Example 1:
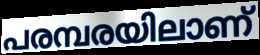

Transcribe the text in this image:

പരമ്പരയിലാണ്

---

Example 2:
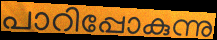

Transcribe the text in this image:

പാറിപ്പോകുന്നു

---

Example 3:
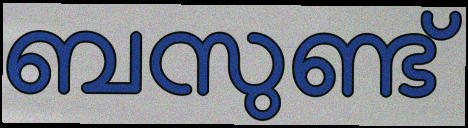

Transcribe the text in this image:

ബസുണ്ട്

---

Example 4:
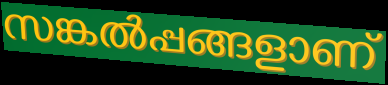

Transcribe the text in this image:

സങ്കൽപ്പങ്ങളാണ്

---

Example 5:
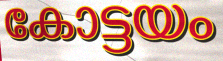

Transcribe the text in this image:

കോട്ടയം